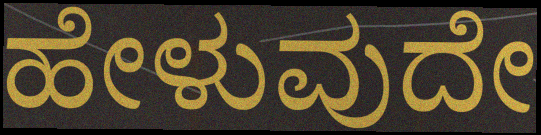
ಹೇಳುವುದೇ